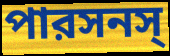
পারসনস্